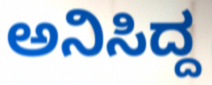
ಅನಿಸಿದ್ದ